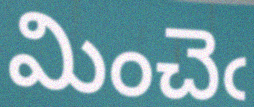
మించెఁ